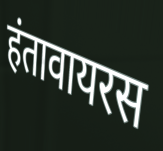
हंतावायरस